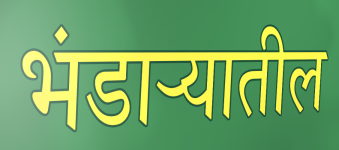
भंडाऱ्यातील